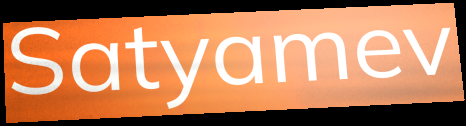
Satyamev